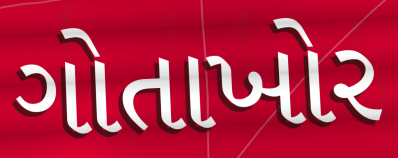
ગોતાખોર